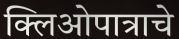
क्लिओपात्राचे